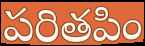
పరితపిం